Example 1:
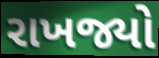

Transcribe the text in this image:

રાખજ્યો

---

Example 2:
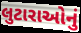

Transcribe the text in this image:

લુટારાઓનું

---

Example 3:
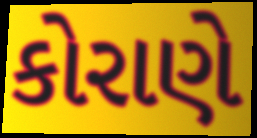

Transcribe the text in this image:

કોરાણે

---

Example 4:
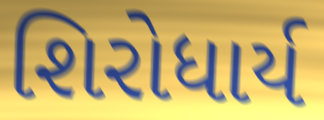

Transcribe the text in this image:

શિરોધાર્ય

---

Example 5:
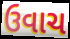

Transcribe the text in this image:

ઉવાચ